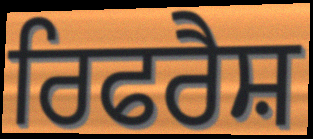
ਰਿਫਰੈਸ਼